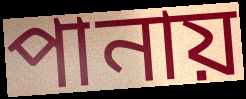
পানায়